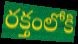
రక్తంలోకి